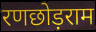
रणछोड़राम